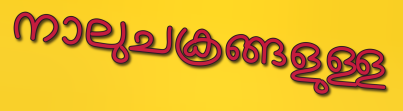
നാലുചക്രങ്ങളുള്ള